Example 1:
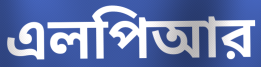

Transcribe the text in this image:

এলপিআর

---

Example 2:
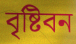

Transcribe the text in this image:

বৃষ্টিবন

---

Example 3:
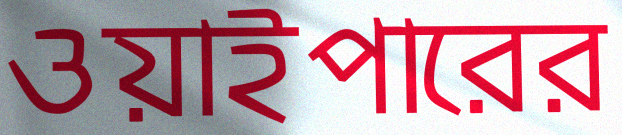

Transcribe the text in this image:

ওয়াইপারের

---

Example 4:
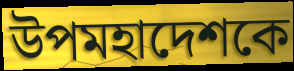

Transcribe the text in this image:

উপমহাদেশকে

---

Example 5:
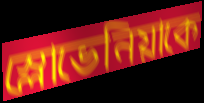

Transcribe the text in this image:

স্লোভেনিয়াকে